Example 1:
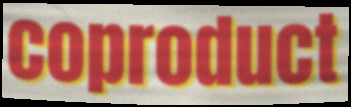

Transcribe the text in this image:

coproduct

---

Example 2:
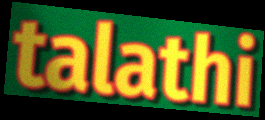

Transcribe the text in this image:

talathi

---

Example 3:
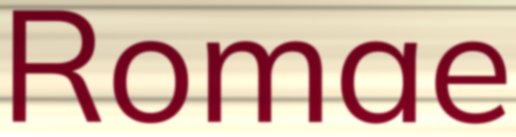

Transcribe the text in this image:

Romae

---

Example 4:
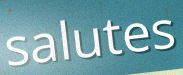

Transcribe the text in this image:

salutes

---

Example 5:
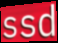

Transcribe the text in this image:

ssd